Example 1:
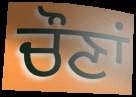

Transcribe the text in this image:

ਚੌਣਾਂ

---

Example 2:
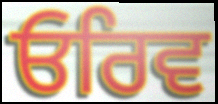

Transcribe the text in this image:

ਓਰਿਵ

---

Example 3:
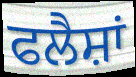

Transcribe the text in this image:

ਫਲੈਸ਼ਾਂ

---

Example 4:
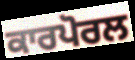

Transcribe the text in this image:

ਕਾਰਪੋਰਲ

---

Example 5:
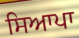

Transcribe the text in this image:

ਸਿਆਪਾ